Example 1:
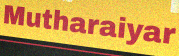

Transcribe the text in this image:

Mutharaiyar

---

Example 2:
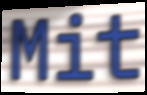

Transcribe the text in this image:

Mit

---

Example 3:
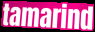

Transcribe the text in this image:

tamarind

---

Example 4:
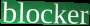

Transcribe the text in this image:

blocker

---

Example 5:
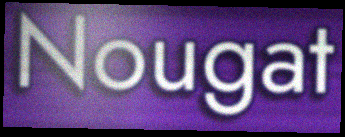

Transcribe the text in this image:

Nougat